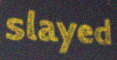
slayed